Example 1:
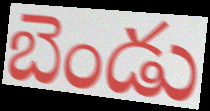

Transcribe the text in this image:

బెండు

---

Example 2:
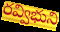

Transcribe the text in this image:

రవ్విభుని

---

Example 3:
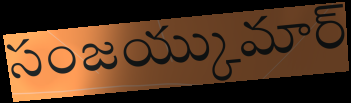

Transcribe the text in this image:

సంజయ్కుమార్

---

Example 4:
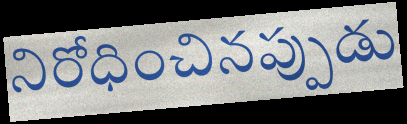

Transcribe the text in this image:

నిరోధించినప్పుడు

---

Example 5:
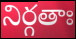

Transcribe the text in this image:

నిర్గతాః